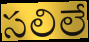
సలిలే